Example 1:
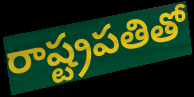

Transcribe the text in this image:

రాష్ట్రపతితో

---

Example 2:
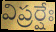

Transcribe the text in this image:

విప్రర్షేః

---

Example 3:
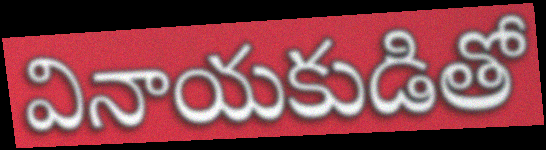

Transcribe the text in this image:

వినాయకుడితో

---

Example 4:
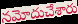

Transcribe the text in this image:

నమోదుచేశారు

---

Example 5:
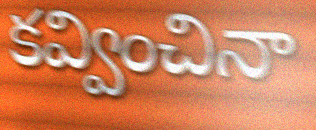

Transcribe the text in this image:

కవ్వించినా